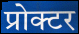
प्रोक्टर